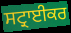
ਸਟ੍ਰਾਈਕਰ